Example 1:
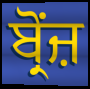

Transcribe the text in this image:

ਬ੍ਰੋਂਜ਼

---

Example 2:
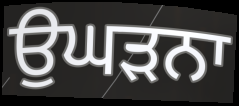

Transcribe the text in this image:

ਉਘੜਨਾ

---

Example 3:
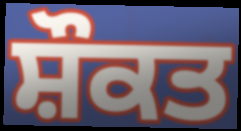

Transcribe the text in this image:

ਸ਼ੌਕਤ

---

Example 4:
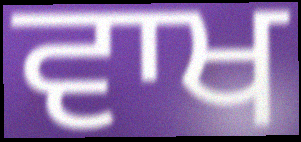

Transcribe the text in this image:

ਵਾਖ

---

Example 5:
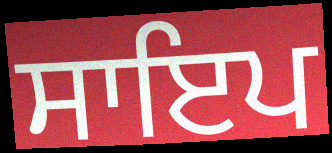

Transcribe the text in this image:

ਸਾਇਪ